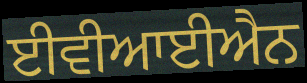
ਈਵੀਆਈਐਨ